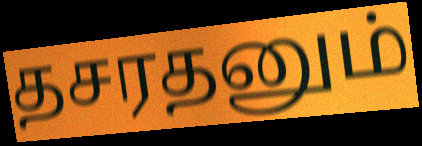
தசரதனும்